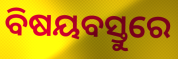
ବିଷୟବସ୍ତୁରେ